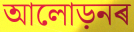
আলোড়নৰ